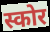
स्कोर